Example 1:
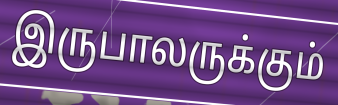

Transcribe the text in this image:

இருபாலருக்கும்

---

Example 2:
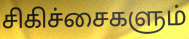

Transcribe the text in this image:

சிகிச்சைகளும்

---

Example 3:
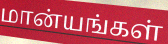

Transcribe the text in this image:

மான்யங்கள்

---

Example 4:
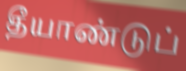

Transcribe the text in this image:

தீயாண்டுப்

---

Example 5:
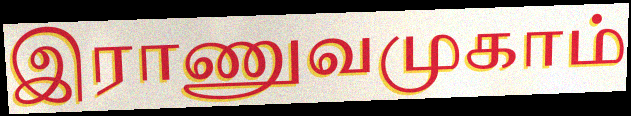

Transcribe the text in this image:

இராணுவமுகாம்